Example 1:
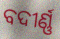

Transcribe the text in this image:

ବଦୀର୍ଣ୍ଣ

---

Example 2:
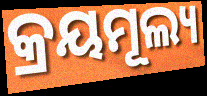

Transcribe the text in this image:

କ୍ରୟମୂଲ୍ୟ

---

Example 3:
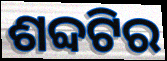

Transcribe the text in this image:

ଶବ୍ଦଟିର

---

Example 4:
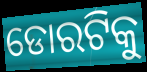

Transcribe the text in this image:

ଡୋରଟିକୁ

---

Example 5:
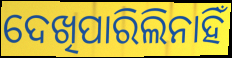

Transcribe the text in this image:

ଦେଖିପାରିଲିନାହିଁ